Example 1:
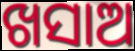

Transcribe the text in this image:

ଖସାଅ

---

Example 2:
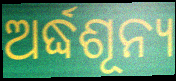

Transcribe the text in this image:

ଅର୍ଦ୍ଧଶୂନ୍ୟ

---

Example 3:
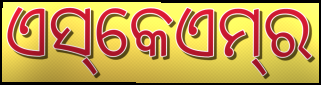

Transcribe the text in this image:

ଏସ୍‌କେଏମ୍‌ର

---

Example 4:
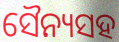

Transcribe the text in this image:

ସୈନ୍ୟସହ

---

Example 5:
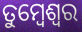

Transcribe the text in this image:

ତୁମ୍ବେଶ୍ଵର